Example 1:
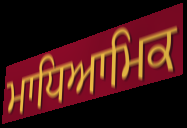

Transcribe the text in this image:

ਮਾਧਿਆਮਿਕ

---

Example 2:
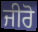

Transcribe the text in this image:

ਜੀਰੋ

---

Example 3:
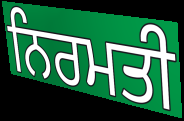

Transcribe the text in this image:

ਨਿਰਮਤੀ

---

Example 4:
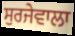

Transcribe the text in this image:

ਸੁਰਜੇਵਾਲਾ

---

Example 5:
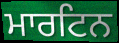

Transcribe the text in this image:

ਮਾਰਟਿਨ